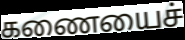
கணையைச்